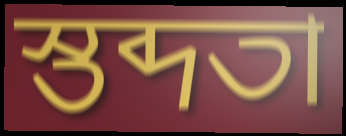
স্তব্দতা